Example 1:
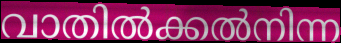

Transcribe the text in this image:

വാതിൽക്കൽനിന്ന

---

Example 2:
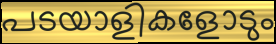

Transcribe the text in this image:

പടയാളികളോടും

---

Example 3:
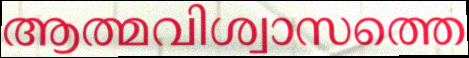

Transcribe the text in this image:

ആത്മവിശ്വാസത്തെ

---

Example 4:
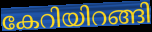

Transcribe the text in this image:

കേറിയിറങ്ങി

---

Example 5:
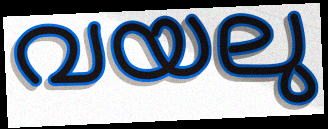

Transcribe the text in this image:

വയലു